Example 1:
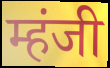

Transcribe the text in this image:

म्हंजी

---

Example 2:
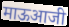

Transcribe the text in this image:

माऊआजी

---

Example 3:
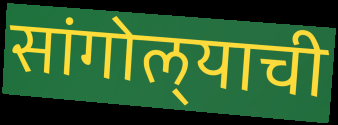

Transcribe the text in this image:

सांगोल्याची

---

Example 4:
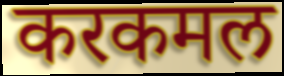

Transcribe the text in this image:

करकमल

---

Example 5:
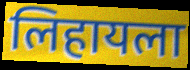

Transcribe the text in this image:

लिहायला